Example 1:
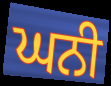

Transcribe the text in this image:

ਘਨੀ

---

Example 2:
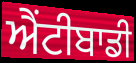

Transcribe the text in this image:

ਐਂਟੀਬਾਡੀ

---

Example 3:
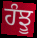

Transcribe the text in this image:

ਹੰਝੂ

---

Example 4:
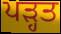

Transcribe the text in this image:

ਪਡ਼੍ਹਤ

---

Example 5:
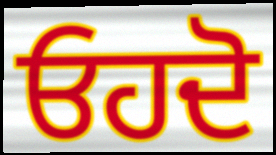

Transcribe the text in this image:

ਓਹਦੋ